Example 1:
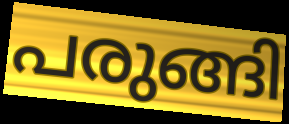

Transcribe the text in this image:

പരുങ്ങി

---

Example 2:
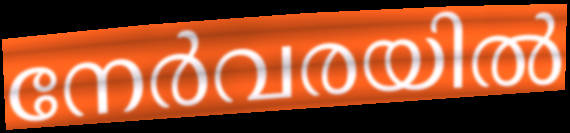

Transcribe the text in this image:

നേർവരയിൽ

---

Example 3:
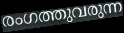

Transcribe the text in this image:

രംഗത്തുവരുന്ന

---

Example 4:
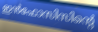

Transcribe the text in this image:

ഇൻഫോസിസിന്റെ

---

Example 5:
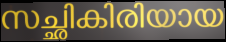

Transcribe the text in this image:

സച്ഛികിരിയായ